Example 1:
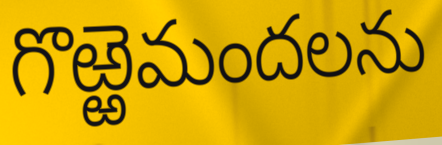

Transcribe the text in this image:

గొఱ్ఱెమందలను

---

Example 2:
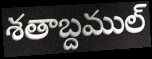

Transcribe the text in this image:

శతాబ్దముల్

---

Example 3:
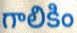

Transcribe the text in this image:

గాలికిం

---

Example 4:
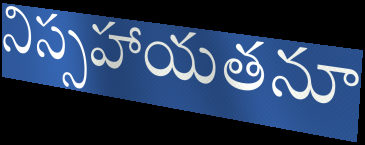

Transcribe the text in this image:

నిస్సహాయతనూ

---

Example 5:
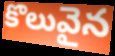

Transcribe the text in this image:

కొలువైన